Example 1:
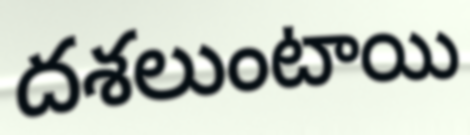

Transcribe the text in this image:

దశలుంటాయి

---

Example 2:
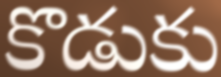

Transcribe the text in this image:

కొడుకు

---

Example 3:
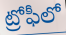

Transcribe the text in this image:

ట్రోఫీలో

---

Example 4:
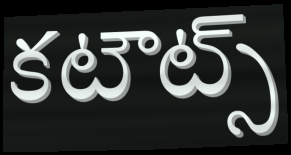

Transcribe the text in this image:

కటౌట్స్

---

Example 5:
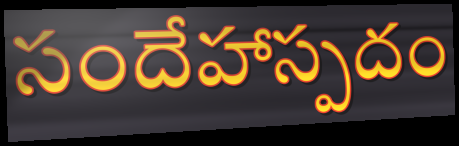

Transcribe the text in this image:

సందేహాస్పదం